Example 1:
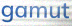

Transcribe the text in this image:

gamut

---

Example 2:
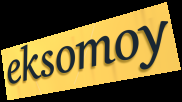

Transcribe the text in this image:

eksomoy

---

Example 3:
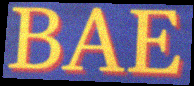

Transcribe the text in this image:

BAE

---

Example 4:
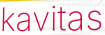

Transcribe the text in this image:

kavitas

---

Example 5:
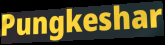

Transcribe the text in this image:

Pungkeshar